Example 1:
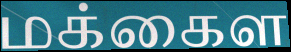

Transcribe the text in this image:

மக்கைள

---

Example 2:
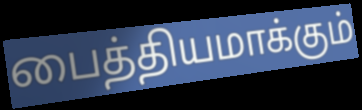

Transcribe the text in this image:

பைத்தியமாக்கும்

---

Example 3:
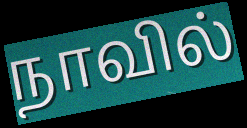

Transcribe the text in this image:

நாவில்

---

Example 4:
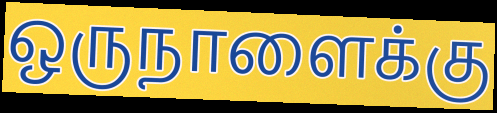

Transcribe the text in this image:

ஒருநாளைக்கு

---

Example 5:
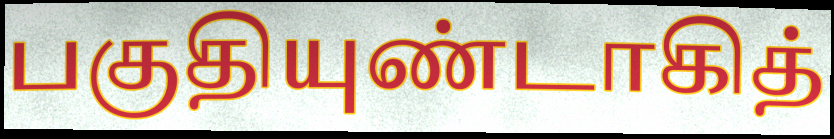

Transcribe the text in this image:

பகுதியுண்டாகித்